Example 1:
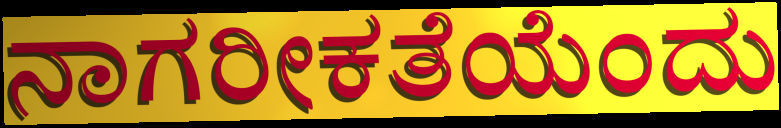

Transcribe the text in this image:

ನಾಗರೀಕತೆಯೆಂದು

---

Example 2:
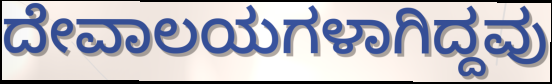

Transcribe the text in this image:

ದೇವಾಲಯಗಳಾಗಿದ್ದವು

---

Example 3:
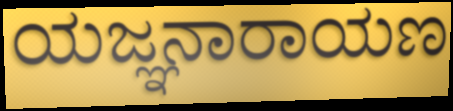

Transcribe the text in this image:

ಯಜ್ಞನಾರಾಯಣ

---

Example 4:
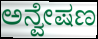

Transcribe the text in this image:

ಅನ್ವೇಷಣ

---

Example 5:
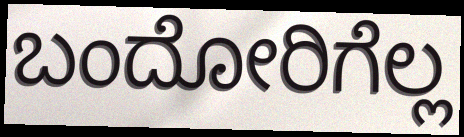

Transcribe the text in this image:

ಬಂದೋರಿಗೆಲ್ಲ